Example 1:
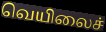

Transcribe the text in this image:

வெயிலைச்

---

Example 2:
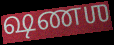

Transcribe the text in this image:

ஷணஶ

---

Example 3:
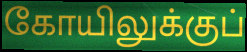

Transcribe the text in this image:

கோயிலுக்குப்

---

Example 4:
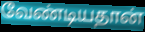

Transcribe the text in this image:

வேண்டியதான்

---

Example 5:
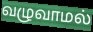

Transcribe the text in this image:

வழுவாமல்